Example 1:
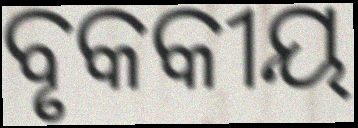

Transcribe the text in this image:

ବୃକକୀୟ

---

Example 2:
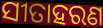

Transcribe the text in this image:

ସୀତାହରଣ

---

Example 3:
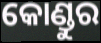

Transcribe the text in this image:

କୋଣ୍ଡୁର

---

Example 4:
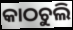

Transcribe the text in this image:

କାଠଚୁଲି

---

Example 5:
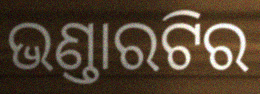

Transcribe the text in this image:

ଭଣ୍ଡାରଟିର